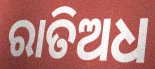
ରାତିଅଧ